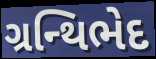
ગ્રન્થિભેદ